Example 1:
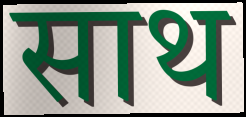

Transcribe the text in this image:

साथ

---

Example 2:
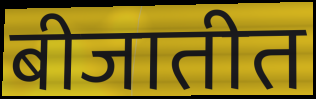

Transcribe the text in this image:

बीजातीत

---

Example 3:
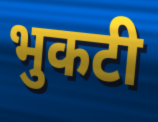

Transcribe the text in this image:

भुकटी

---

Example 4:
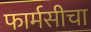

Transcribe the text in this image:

फार्मसीचा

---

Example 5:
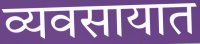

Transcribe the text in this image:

व्यवसायात